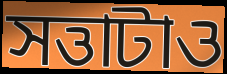
সত্তাটাও